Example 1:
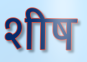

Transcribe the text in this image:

शीष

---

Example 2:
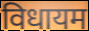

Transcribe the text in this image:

विधायम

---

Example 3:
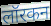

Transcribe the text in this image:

लॉरकन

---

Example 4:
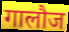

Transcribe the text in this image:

गालौज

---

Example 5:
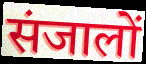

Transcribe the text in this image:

संजालों